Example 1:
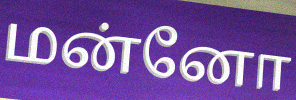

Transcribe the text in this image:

மன்னோ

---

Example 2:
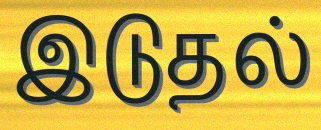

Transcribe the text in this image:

இடுதல்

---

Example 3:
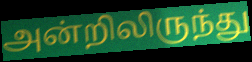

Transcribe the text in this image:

அன்றிலிருந்து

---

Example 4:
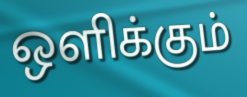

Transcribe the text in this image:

ஒளிக்கும்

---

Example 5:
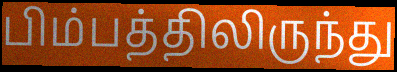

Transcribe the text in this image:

பிம்பத்திலிருந்து